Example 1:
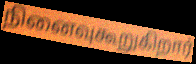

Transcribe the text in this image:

நினைவுகூறுகிறார்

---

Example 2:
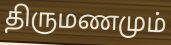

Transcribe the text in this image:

திருமணமும்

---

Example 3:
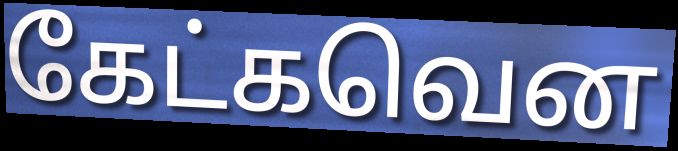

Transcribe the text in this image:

கேட்கவென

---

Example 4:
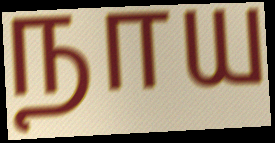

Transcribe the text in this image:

நாய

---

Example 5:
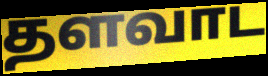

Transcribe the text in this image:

தளவாட